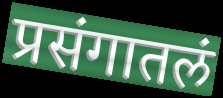
प्रसंगातलं